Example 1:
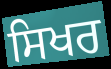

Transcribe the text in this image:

ਸਿਖਰ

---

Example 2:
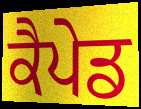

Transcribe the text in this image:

ਕੈਪੇਡ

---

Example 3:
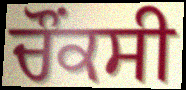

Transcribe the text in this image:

ਚੌਂਕਸੀ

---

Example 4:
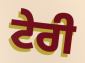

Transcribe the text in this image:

ਟੇਰੀ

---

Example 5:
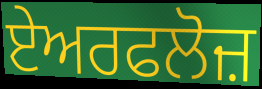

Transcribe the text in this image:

ਏਅਰਫਲੋਜ਼